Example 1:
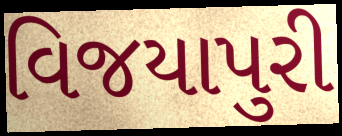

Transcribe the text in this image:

વિજયાપુરી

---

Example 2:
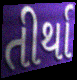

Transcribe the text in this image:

તીર્થા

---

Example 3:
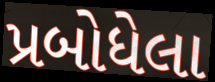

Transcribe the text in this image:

પ્રબોધેલા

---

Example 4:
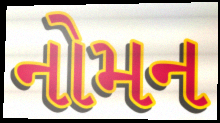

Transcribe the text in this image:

નોમન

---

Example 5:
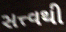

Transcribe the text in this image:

સત્ત્વથી